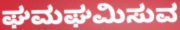
ಘಮಘಮಿಸುವ